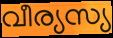
വീര്യസ്യ